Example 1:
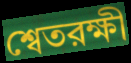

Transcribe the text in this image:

শ্বেতরক্ষী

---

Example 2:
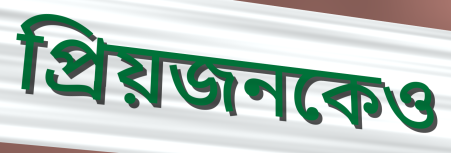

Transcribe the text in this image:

প্রিয়জনকেও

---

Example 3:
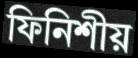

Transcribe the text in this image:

ফিনিশীয়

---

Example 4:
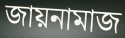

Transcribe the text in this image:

জায়নামাজ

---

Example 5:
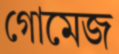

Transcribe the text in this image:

গোমেজ